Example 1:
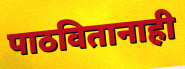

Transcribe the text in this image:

पाठवितानाही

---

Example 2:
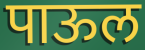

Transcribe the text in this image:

पाऊल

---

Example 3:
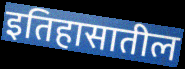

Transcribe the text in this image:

इतिहासातील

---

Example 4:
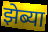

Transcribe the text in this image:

झेब्या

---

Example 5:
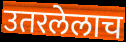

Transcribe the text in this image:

उतरलेलाच